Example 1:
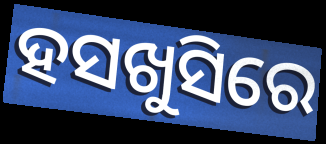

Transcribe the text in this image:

ହସଖୁସିରେ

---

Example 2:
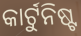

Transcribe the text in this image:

କାର୍ଟୁନିଷ୍ଟ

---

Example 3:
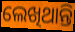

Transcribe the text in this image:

ଲେଖିଥାନ୍ତି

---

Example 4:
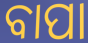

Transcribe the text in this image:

ବାପା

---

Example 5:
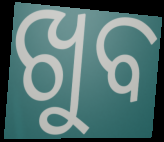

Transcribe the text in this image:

ଖୁବ